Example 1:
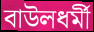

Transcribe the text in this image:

বাউলধর্মী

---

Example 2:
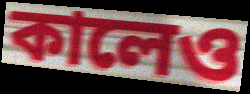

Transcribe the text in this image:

কালেও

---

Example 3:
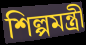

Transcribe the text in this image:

শিল্পমন্ত্রী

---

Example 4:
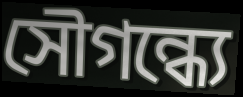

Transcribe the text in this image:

সৌগন্ধ্যে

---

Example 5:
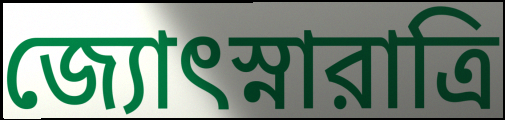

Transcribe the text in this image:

জ্যোৎস্নারাত্রি